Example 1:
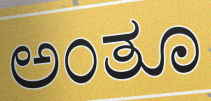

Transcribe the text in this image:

ಅಂತೂ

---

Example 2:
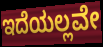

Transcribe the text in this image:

ಇದೆಯಲ್ಲವೇ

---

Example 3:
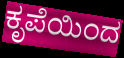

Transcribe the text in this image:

ಕೃಪೆಯಿಂದ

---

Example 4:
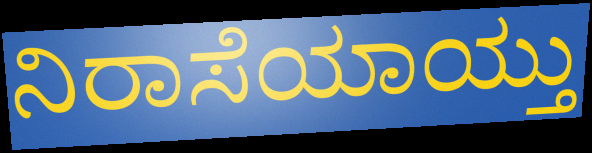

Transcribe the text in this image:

ನಿರಾಸೆಯಾಯ್ತು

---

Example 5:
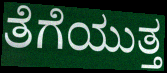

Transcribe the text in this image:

ತೆಗೆಯುತ್ತ